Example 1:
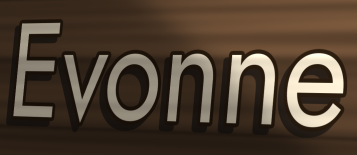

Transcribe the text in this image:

Evonne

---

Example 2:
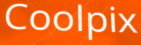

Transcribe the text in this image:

Coolpix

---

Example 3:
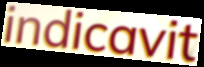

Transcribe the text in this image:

indicavit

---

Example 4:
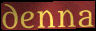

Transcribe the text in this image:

denna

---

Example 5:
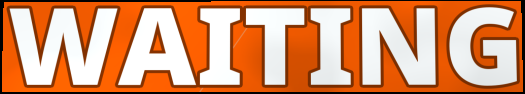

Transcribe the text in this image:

WAITING